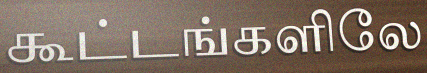
கூட்டங்களிலே